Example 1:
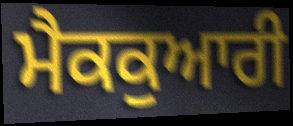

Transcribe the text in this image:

ਮੈਕਕੁਆਰੀ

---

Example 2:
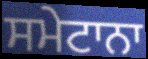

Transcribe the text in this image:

ਸਮੇਟਾਨਾ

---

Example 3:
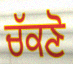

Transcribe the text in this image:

ਚੱਕਣੋ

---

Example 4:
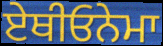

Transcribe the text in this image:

ਏਥੀਓਨੇਮਾ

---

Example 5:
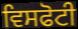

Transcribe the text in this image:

ਵਿਸਫੋਟੀ